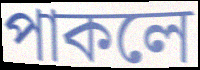
পাকলে